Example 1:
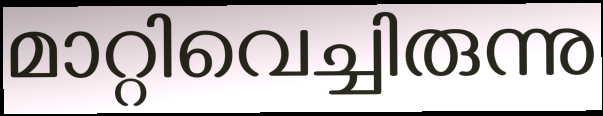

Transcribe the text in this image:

മാറ്റിവെച്ചിരുന്നു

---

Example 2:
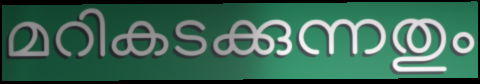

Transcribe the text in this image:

മറികടക്കുന്നതും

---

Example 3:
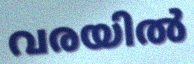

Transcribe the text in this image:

വരയിൽ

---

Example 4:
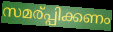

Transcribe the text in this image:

സമര്പ്പിക്കണം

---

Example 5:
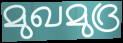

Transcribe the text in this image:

മുഖമുദ്ര